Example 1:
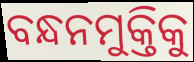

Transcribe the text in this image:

ବନ୍ଧନମୁକ୍ତିକୁ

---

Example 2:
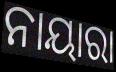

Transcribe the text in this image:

ନାୟାରା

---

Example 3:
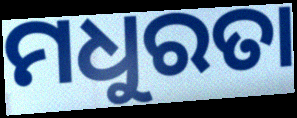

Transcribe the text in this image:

ମଧୁରତା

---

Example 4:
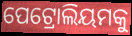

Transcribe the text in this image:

ପେଟ୍ରୋଲିୟମକୁ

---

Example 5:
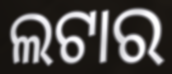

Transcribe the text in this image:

ଲଟାର